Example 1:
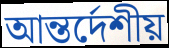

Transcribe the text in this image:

আন্তর্দেশীয়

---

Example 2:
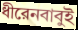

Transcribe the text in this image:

ধীরেনবাবুই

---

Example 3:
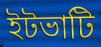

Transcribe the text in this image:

ইটভাটি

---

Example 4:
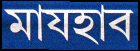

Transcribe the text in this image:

মাযহাব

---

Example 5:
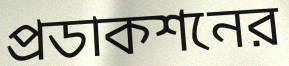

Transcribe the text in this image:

প্রডাকশনের